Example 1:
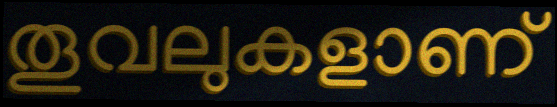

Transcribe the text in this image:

തൂവലുകളാണ്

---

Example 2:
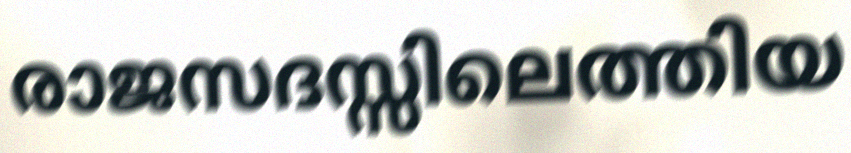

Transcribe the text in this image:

രാജസദസ്സിലെത്തിയ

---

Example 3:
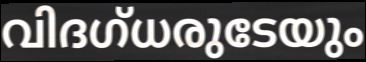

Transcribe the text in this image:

വിദഗ്ധരുടേയും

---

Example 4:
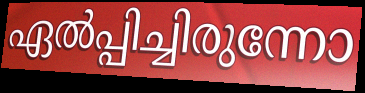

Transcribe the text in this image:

ഏൽപ്പിച്ചിരുന്നോ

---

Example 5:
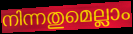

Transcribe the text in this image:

നിന്നതുമെല്ലാം